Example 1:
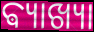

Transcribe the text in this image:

ଵ୍ଯାଖ୍ଯା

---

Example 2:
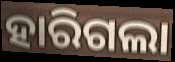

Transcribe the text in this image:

ହାରିଗଲା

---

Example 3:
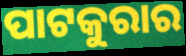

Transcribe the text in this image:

ପାଟକୁରାର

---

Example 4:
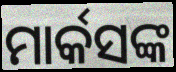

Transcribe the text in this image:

ମାର୍କସଙ୍କ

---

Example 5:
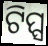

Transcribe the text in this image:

ଟିପ୍ସ